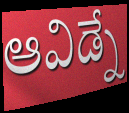
ఆవిడ్నే